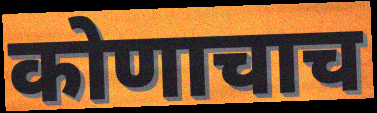
कोणाचाच